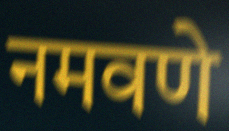
नमवणे